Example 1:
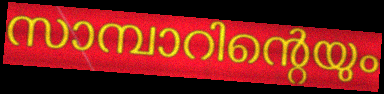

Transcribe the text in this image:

സാമ്പാറിന്റെയും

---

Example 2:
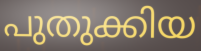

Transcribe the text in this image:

പുതുക്കിയ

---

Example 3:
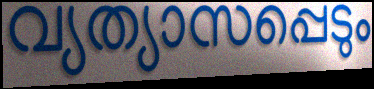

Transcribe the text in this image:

വ്യത്യാസപ്പെടും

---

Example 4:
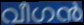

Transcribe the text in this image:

വീഗൻ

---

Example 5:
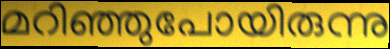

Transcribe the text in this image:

മറിഞ്ഞുപോയിരുന്നു